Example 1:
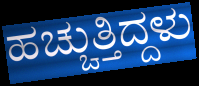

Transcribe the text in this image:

ಹಚ್ಚುತ್ತಿದ್ದಳು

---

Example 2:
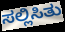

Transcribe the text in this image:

ಸಲ್ಲಿಸಿತು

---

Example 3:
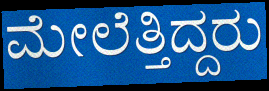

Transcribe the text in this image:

ಮೇಲೆತ್ತಿದ್ದರು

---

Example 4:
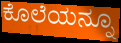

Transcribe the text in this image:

ಕೊಲೆಯನ್ನೂ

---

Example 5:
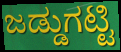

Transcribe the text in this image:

ಜಡ್ಡುಗಟ್ಟಿ